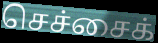
செச்சைக்